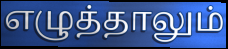
எழுத்தாலும்